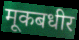
मूकबधीर